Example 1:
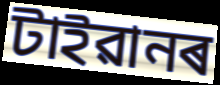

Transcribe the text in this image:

টাইৱানৰ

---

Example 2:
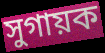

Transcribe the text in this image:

সুগায়ক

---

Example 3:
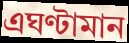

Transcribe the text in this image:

এঘণ্টামান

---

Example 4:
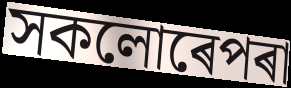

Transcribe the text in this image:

সকলোৰেপৰা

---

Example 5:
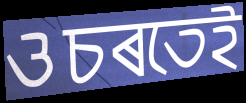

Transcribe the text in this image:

ওচৰতেই